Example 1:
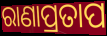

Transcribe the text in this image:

ରାଣାପ୍ରତାପ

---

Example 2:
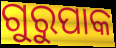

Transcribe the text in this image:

ଗୁରୁପାକ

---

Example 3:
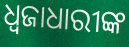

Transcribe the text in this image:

ଧ୍ୱଜାଧାରୀଙ୍କ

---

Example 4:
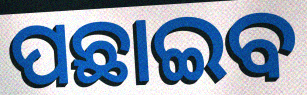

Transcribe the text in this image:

ପଛାଇବ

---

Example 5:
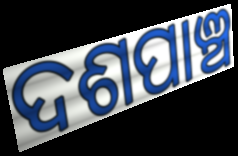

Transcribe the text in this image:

ଦଶପାଞ୍ଚ